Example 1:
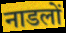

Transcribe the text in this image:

नाडलों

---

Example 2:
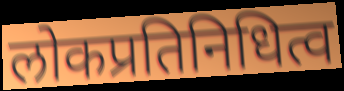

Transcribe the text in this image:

लोकप्रतिनिधित्व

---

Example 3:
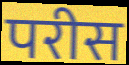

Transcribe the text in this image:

परीस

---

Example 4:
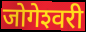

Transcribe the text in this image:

जोगेश्‍वरी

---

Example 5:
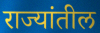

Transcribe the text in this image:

राज्यांतील